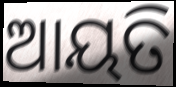
ଆୟତି